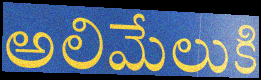
అలిమేలుకి